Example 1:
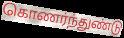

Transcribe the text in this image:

கொணர்ந்துண்டு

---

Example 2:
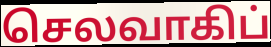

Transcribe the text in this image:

செலவாகிப்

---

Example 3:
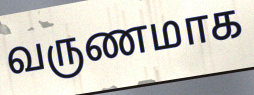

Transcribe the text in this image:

வருணமாக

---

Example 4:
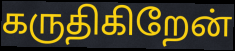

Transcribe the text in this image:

கருதிகிறேன்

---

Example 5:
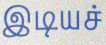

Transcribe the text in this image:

இடியச்